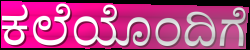
ಕಲೆಯೊಂದಿಗೆ